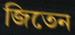
জিতেন